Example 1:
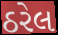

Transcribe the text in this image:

ઠરેલ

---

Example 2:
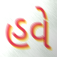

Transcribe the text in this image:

હવે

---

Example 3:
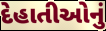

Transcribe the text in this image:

દેહાતીઓનું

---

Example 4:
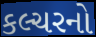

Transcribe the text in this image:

કલ્ચરનો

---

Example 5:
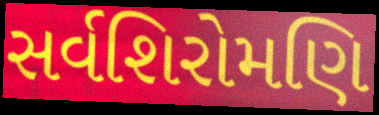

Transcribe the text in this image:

સર્વશિરોમણિ